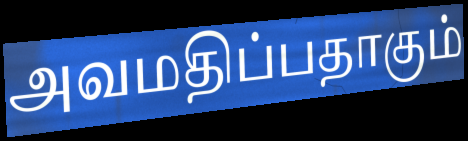
அவமதிப்பதாகும்